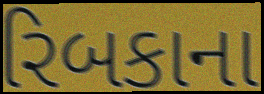
રિબકાના